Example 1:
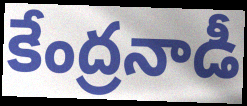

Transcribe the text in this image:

కేంద్రనాడీ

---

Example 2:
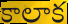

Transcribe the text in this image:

కాలాక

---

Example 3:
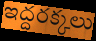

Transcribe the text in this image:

ఇద్దరక్కలు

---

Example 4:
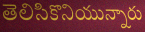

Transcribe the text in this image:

తెలిసికొనియున్నారు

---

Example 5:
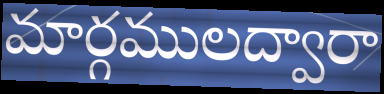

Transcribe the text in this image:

మార్గములద్వారా